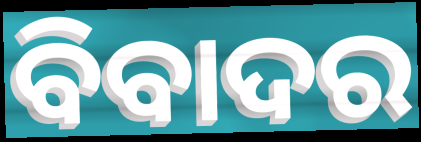
ବିବାଦର